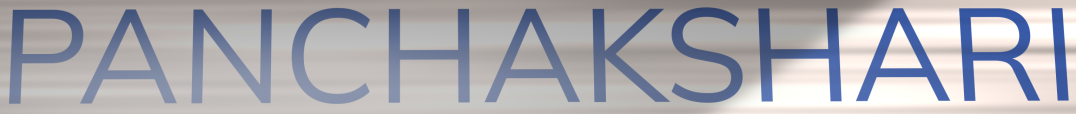
PANCHAKSHARI